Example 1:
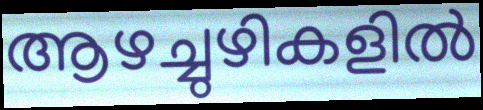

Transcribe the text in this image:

ആഴച്ചുഴികളിൽ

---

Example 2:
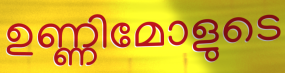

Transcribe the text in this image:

ഉണ്ണിമോളുടെ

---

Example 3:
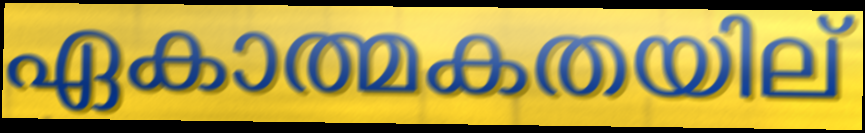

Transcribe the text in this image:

ഏകാത്മകതയില്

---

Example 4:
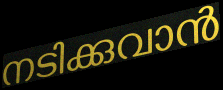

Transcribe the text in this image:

നടിക്കുവാൻ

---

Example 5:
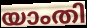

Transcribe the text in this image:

യാംതി